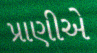
પ્રાણીએ